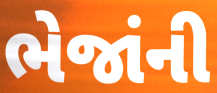
ભેજાંની